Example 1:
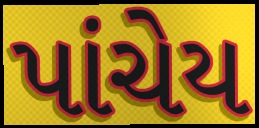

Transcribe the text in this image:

પાંચેય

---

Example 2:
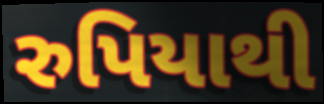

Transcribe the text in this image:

રુપિયાથી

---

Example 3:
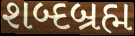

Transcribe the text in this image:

શબ્દબ્રહ્મ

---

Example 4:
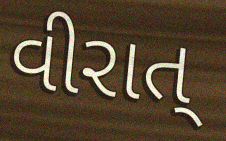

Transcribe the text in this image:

વીરાત્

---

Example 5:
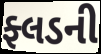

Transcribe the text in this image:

ફ્લડની